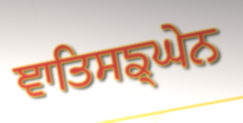
ਞਾਤਿਸਙ੍ਘੇਨ